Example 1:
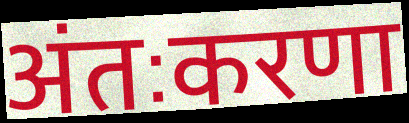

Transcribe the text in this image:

अंतःकरणा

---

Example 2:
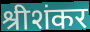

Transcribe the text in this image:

श्रीशंकर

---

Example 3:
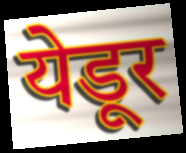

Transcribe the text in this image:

येडूर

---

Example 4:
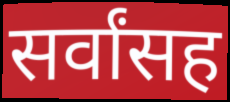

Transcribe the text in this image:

सर्वांसह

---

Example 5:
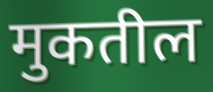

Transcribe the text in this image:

मुकतील